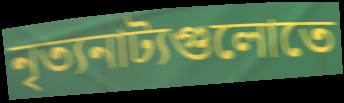
নৃত্যনাট্যগুলোতে